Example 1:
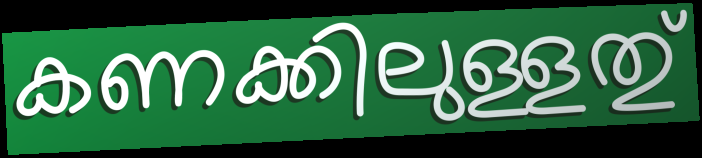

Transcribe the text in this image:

കണക്കിലുള്ളതു്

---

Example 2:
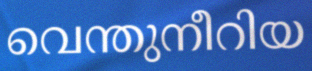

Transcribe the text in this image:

വെന്തുനീറിയ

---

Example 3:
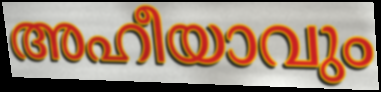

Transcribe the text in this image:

അഹീയാവും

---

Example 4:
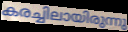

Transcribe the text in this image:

കരച്ചിലായിരുന്നു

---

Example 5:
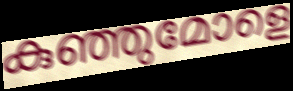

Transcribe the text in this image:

കുഞ്ഞുമോളെ